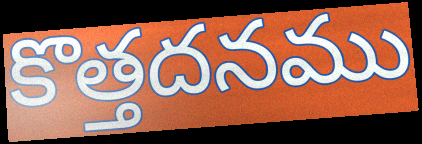
కొత్తదనము